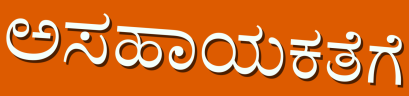
ಅಸಹಾಯಕತೆಗೆ